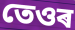
তেওৰ